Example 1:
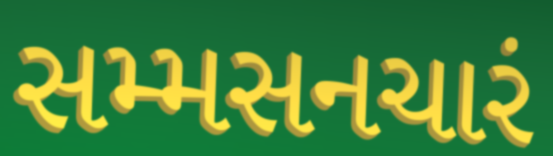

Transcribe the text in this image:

સમ્મસનચારં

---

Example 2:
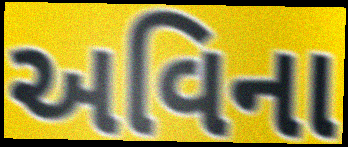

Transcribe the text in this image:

અવિના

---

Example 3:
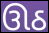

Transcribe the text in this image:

ઊઠ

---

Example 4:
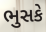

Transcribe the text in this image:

ભુસકે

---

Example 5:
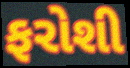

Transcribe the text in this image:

ફરોશી